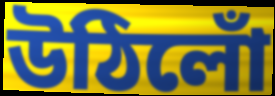
উঠিলোঁ